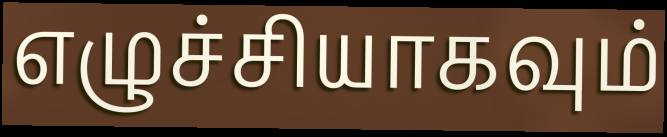
எழுச்சியாகவும்